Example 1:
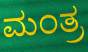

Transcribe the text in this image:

ಮಂತ್ರ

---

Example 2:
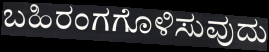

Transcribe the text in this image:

ಬಹಿರಂಗಗೊಳಿಸುವುದು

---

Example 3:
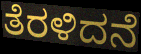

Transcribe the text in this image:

ತೆರಳಿದನೆ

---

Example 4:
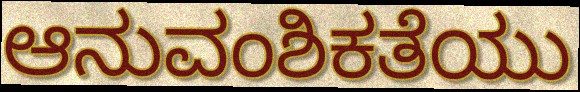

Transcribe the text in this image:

ಆನುವಂಶಿಕತೆಯು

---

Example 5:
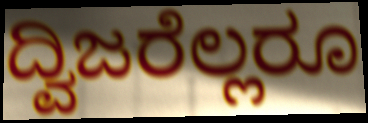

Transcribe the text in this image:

ದ್ವಿಜರೆಲ್ಲರೂ